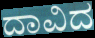
ದಾವಿದ